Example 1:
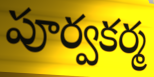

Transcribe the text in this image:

పూర్వకర్మ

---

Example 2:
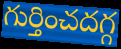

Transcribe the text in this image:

గుర్తించదగ్గ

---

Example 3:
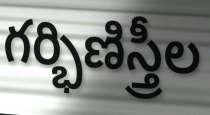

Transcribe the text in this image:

గర్భిణిస్త్రీల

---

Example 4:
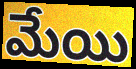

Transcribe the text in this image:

మేయి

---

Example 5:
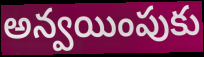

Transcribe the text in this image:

అన్వయింపుకు